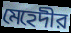
মেহেদীর